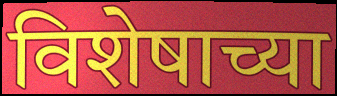
विशेषाच्या